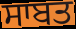
ਸਾਬਤ